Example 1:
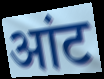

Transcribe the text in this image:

आंट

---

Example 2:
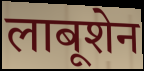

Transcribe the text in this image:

लाबूशेन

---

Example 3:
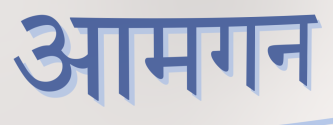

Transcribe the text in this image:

आमगन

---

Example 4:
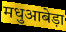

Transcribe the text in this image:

मधुआबेड़ा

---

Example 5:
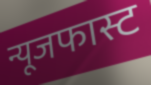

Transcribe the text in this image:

न्यूजफास्ट